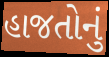
હાજતોનું